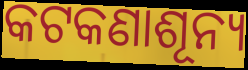
କଟକଣାଶୂନ୍ୟ